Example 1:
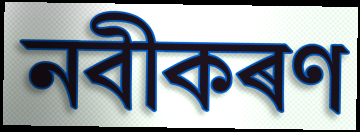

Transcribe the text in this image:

নবীকৰণ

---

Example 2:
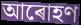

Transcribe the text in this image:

আৰোহণ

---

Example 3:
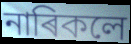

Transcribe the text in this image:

নাৰিকলে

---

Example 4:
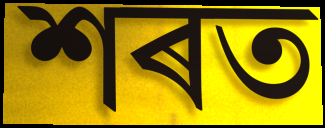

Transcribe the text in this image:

শৰত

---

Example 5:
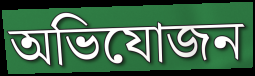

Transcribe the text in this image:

অভিযোজন